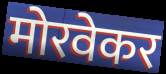
मोरवेकर